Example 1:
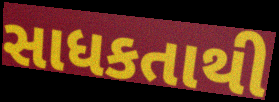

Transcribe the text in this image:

સાધકતાથી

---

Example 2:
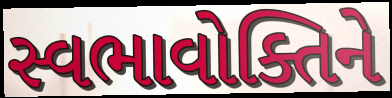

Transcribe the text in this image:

સ્વભાવોક્તિને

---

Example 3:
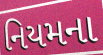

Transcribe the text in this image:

નિયમના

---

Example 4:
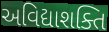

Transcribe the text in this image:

અવિદ્યાશક્તિ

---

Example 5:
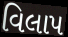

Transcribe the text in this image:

વિલાપ